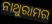
ନାଥୁରାମର